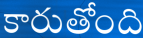
కారుతోంది